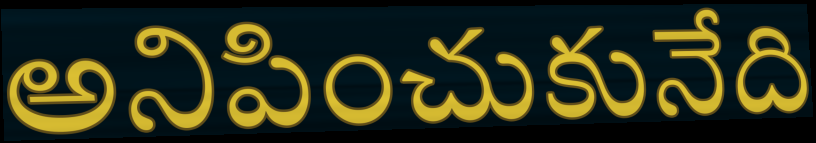
అనిపించుకునేది